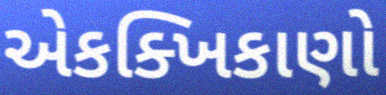
એકક્ખિકાણો